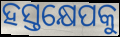
ହସ୍ତକ୍ଷେପକୁ